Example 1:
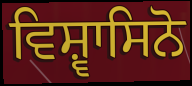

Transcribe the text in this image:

ਵਿਸ਼੍ਵਾਸਿਨੋ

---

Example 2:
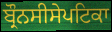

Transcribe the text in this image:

ਬ੍ਰੌਨਸੀਸੇਪਟਿਕਾ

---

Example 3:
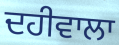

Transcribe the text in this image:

ਦਹੀਵਾਲਾ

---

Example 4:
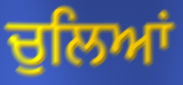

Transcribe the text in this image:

ਚੁਲਿਆਂ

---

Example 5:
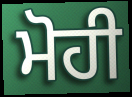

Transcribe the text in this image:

ਮੋਹੀ